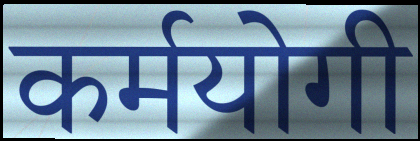
कर्मयोगी